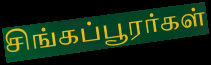
சிங்கப்பூரர்கள்